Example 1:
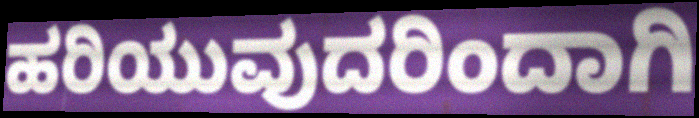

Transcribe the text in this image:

ಹರಿಯುವುದರಿಂದಾಗಿ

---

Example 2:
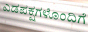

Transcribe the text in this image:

ಎಡಪಕ್ಷಗಳೊಂದಿಗೆ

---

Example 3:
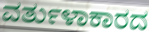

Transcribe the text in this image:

ವರ್ತುಳಾಕಾರದ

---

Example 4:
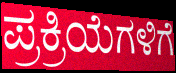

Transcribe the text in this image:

ಪ್ರಕ್ರಿಯೆಗಳಿಗೆ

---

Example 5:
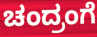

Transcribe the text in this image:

ಚಂದ್ರಂಗೆ